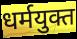
धर्मयुक्त